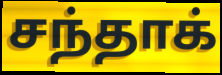
சந்தாக்